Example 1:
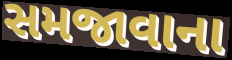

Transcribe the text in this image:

સમજાવાના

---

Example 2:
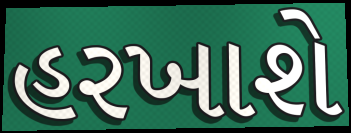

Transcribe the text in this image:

હરખાશે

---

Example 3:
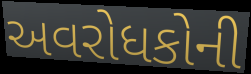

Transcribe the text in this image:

અવરોધકોની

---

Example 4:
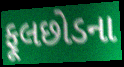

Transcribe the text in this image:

ફૂલછોડના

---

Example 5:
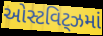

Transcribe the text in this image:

ઓસ્ટવિટ્ઝમાં